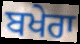
ਬਖੇਰਾ